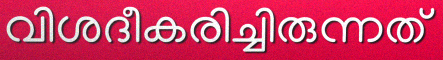
വിശദീകരിച്ചിരുന്നത്